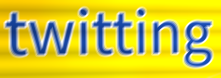
twitting